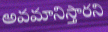
అవమానిస్తారని